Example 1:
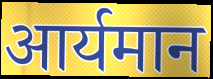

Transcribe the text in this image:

आर्यमान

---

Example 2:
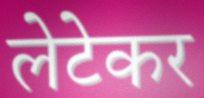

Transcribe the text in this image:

लेटेकर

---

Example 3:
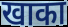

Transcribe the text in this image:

खाका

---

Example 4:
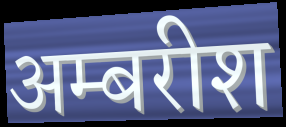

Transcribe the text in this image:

अम्बरीश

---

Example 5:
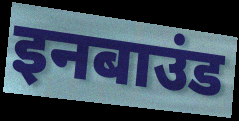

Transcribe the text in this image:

इनबाउंड